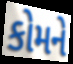
કોમને